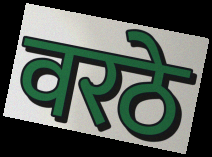
वरठे